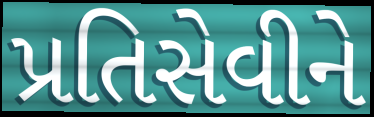
પ્રતિસેવીને